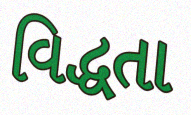
વિદ્ધતા